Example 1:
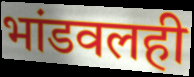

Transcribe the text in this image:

भांडवलही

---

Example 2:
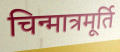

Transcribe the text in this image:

चिन्मात्रमूर्ति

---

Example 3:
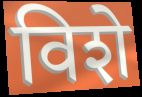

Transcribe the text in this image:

विशे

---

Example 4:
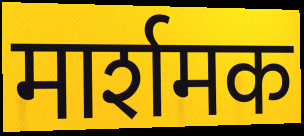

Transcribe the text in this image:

मार्शमक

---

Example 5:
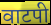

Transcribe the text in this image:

वाटपी